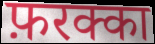
फ़रक्का